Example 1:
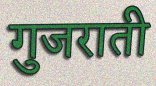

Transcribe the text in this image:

गुजराती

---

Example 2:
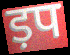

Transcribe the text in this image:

ड़प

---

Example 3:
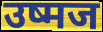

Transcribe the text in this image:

उष्मज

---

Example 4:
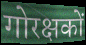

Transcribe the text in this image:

गोरक्षकों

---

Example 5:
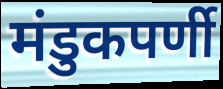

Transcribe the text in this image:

मंडुकपर्णी